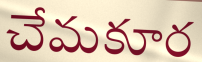
చేమకూర